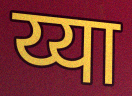
य्या